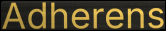
Adherens